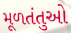
મૂળતંતુઓ